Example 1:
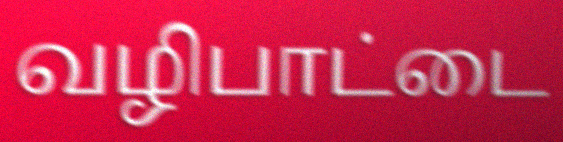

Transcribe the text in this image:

வழிபாட்டை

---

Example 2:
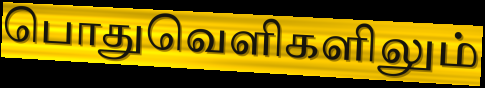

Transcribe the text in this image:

பொதுவெளிகளிலும்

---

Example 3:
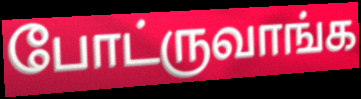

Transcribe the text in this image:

போட்ருவாங்க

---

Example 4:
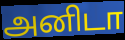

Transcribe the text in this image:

அனிடா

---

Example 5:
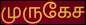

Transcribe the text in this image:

முருகேச